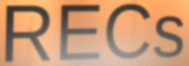
RECs